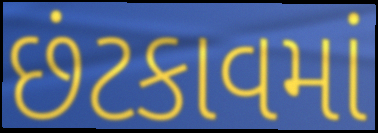
છંટકાવમાં